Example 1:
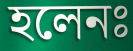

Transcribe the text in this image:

হলেনঃ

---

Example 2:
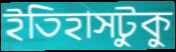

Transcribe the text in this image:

ইতিহাসটুকু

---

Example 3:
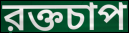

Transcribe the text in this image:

রক্তচাপ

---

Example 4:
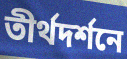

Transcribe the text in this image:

তীর্থদর্শনে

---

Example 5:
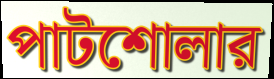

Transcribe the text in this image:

পাটশোলার